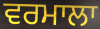
ਵਰਮਾਲਾ